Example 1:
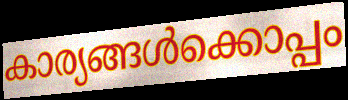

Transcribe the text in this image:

കാര്യങ്ങൾക്കൊപ്പം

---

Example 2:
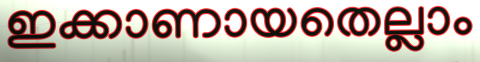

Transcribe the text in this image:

ഇക്കാണായതെല്ലാം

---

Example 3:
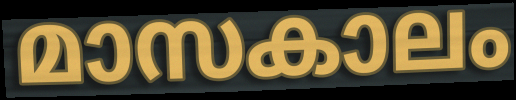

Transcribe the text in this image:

മാസകാലം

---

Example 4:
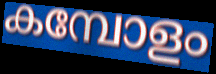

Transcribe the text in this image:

കമ്പോളം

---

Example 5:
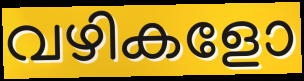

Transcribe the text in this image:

വഴികളോ